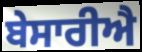
ਬੇਸਾਰੀਐ